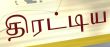
திரட்டிய